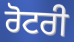
ਰੋਟਰੀ